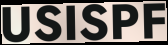
USISPF